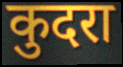
कुदरा